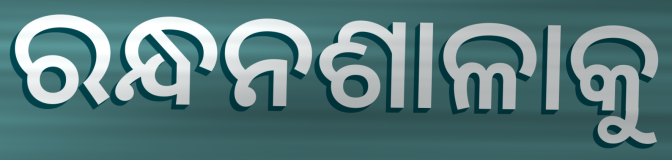
ରନ୍ଧନଶାଳାକୁ